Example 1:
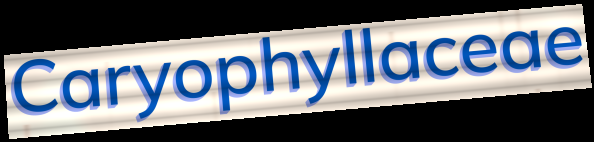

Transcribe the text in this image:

Caryophyllaceae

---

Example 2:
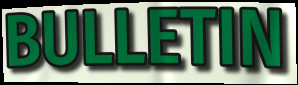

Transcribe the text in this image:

BULLETIN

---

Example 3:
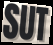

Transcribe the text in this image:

SUT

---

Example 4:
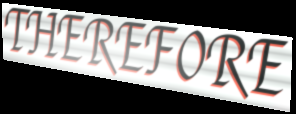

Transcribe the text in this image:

THEREFORE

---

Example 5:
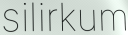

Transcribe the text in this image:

silirkum